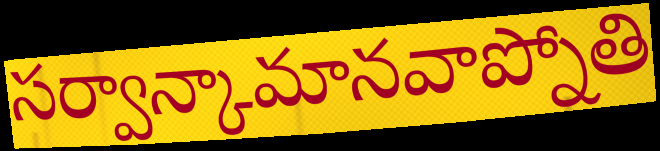
సర్వాన్కామానవాప్నోతి